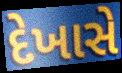
દેખાસે